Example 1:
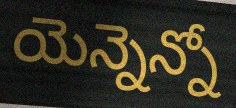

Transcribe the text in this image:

యెన్నెన్నో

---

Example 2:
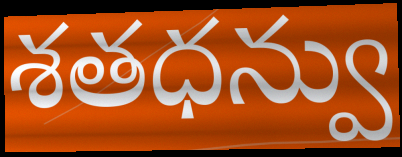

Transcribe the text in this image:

శతధన్వు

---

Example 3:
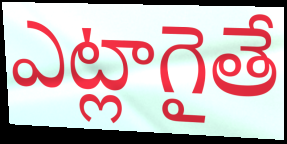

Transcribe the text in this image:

ఎట్లాగైతే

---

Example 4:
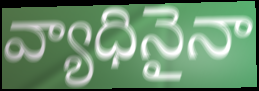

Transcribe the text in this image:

వ్యాధినైనా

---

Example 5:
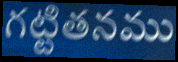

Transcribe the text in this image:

గట్టితనము